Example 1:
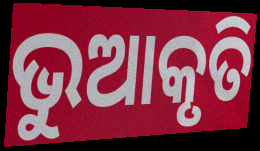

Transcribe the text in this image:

ଭୁଆକୃତି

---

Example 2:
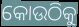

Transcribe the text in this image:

କୋଉଠିକୁ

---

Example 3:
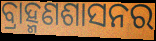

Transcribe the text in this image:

ବ୍ରାହ୍ମଣଶାସନର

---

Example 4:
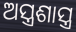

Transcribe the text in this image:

ଅସ୍ତ୍ରଶାସ୍ତ୍ର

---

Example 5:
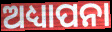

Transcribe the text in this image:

ଅଧ୍ୟାପନା